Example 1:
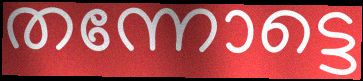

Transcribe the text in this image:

തന്നോട്ടെ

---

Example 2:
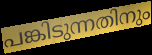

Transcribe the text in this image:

പങ്കിടുന്നതിനും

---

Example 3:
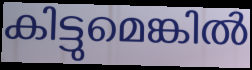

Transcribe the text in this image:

കിട്ടുമെങ്കിൽ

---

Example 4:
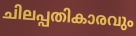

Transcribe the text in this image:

ചിലപ്പതികാരവും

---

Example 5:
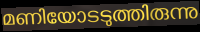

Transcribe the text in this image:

മണിയോടടുത്തിരുന്നു